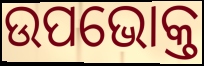
ଉପଭୋକ୍ତ